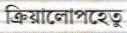
ক্রিয়ালোপহেতু